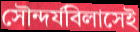
সৌন্দর্যবিলাসেই